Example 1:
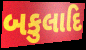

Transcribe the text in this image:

બકુલાદિ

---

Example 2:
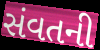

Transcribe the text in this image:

સંવતની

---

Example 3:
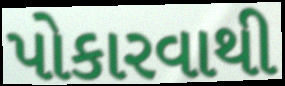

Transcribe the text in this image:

પોકારવાથી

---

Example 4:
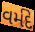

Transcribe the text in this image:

વર્મદે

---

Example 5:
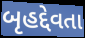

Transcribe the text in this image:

બૃહદ્દેવતા